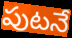
పుటనే